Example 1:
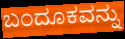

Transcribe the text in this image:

ಬಂದೂಕವನ್ನು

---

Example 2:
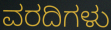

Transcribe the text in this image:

ವರದಿಗಳು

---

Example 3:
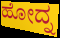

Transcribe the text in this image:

ಹೋದ್ನ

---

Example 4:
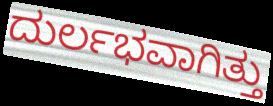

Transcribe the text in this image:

ದುರ್ಲಭವಾಗಿತ್ತು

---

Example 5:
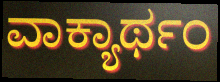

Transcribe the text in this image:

ವಾಕ್ಯಾರ್ಥಂ